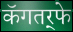
कॅगतर्फे